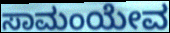
ಸಾಮಂಯೇವ